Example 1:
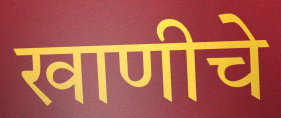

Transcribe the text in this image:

खाणीचे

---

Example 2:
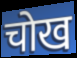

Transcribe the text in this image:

चोख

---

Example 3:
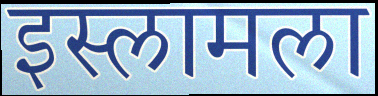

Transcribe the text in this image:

इस्लामला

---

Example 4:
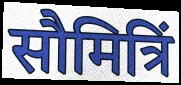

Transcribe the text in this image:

सौमित्रिं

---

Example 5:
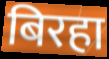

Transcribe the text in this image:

बिरहा